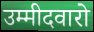
उम्मीदवारो